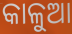
କାଳୁଆ